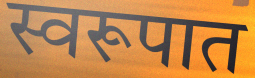
स्वरूपात